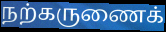
நற்கருணைக்